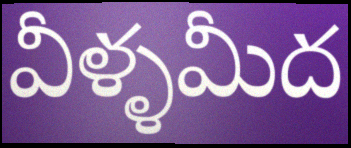
వీళ్ళమీద